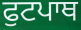
ਫੁਟਪਾਥ